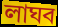
লাঘব